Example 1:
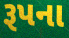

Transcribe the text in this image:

રૂપના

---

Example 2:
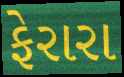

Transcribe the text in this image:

ફેરારા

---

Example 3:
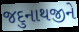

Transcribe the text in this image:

જદુનાથજીને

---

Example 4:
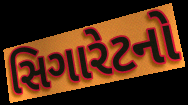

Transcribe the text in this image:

સિગારેટનો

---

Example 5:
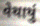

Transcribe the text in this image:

વેચાયું